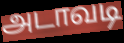
அடாவடி